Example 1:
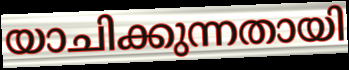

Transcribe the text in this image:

യാചിക്കുന്നതായി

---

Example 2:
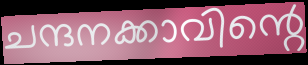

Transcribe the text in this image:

ചന്ദനക്കാവിന്റെ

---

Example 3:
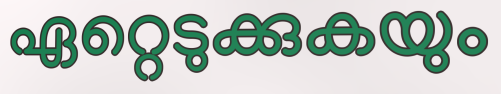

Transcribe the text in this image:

ഏറ്റെടുക്കുകയും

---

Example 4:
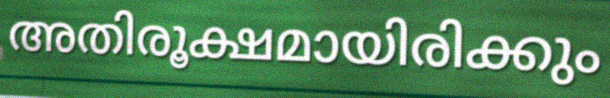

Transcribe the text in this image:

അതിരൂക്ഷമായിരിക്കും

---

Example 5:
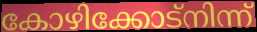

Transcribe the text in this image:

കോഴിക്കോട്നിന്ന്